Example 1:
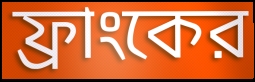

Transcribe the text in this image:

ফ্রাংকের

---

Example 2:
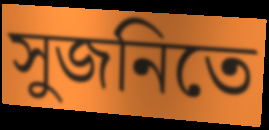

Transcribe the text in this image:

সুজনিতে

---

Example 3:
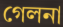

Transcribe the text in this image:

গেলনা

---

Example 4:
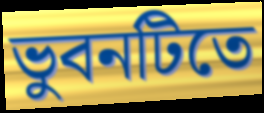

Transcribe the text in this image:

ভুবনটিতে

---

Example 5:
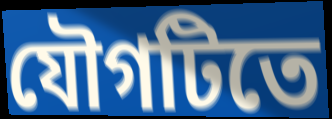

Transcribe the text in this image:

যৌগটিতে